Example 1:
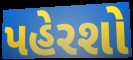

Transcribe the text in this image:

પહેરશો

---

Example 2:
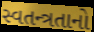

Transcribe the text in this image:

સ્વતન્ત્રતાનો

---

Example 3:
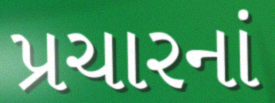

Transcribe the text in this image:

પ્રચારનાં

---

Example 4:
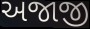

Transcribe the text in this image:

અજાજી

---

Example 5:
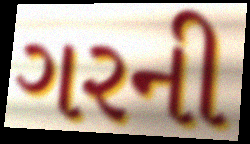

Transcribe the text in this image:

ગરની